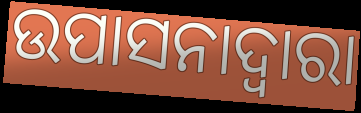
ଉପାସନାଦ୍ଵାରା